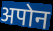
अपोन